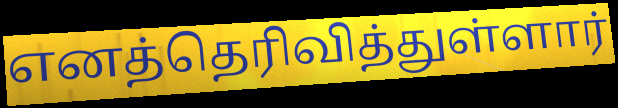
எனத்தெரிவித்துள்ளார்